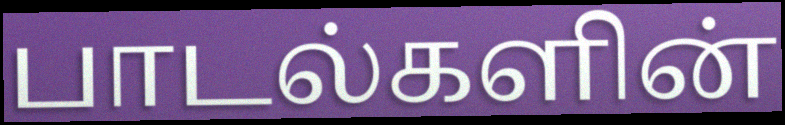
பாடல்களின்